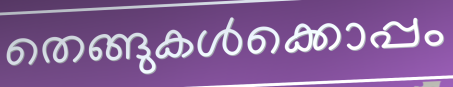
തെങ്ങുകൾക്കൊപ്പം